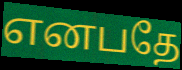
எனபதே